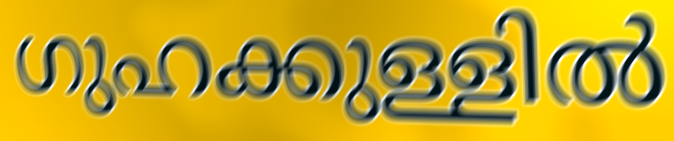
ഗുഹക്കുള്ളിൽ